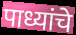
पाध्यांचे